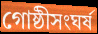
গোষ্ঠীসংঘৰ্ষ